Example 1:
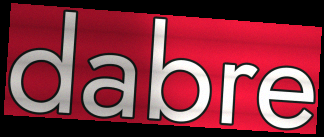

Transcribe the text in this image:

dabre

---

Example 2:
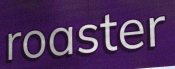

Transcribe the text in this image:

roaster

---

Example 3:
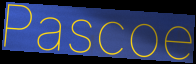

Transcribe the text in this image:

Pascoe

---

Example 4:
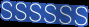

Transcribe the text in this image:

SSSSSS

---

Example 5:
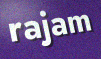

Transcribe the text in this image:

rajam